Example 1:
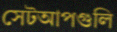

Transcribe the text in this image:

সেটআপগুলি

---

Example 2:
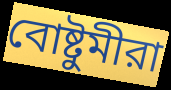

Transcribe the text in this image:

বোষ্টুমীরা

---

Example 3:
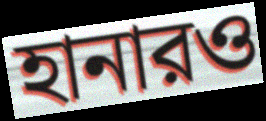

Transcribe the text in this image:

হানারও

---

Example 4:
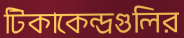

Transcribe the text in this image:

টিকাকেন্দ্রগুলির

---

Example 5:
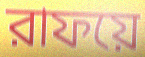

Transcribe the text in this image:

রাফয়ে